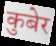
कुबेर